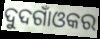
ଦୁଦଗାଁଓକର